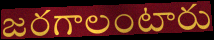
జరగాలంటారు